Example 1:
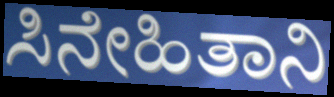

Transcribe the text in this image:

ಸಿನೇಹಿತಾನಿ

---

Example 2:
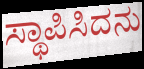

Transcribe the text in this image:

ಸ್ಥಾಪಿಸಿದನು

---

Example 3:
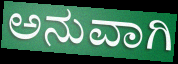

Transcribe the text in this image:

ಅನುವಾಗಿ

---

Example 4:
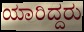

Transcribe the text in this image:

ಯಾರಿದ್ದರು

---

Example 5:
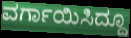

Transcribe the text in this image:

ವರ್ಗಾಯಿಸಿದ್ದೂ